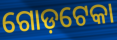
ଗୋଡ଼ଟେକା